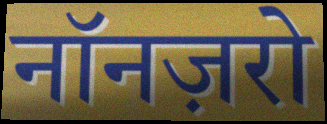
नॉनज़रो